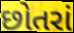
છોતરાં